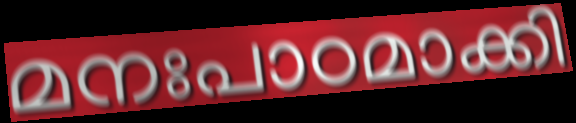
മനഃപാഠമാക്കി